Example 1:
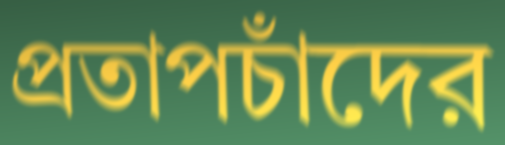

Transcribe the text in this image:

প্রতাপচাঁদের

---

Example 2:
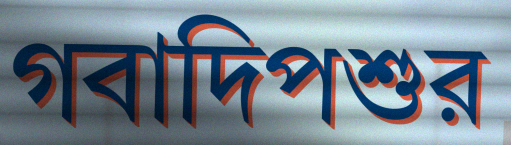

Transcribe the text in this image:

গবাদিপশুর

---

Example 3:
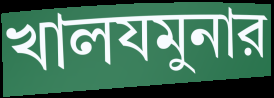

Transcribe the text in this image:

খালযমুনার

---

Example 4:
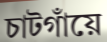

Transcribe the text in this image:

চাটগাঁয়ে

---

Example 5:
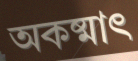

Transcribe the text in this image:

অকষ্মাৎ